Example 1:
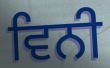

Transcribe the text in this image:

ਵਿਨੀ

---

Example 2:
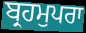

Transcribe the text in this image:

ਬ੍ਰਹਮੁਪਰਾ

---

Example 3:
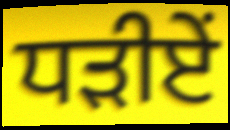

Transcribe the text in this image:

ਧੜੀਏਂ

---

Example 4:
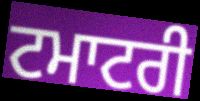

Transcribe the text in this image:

ਟਮਾਟਰੀ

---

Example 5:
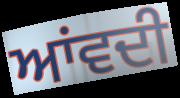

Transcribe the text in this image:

ਆਂਵਦੀ